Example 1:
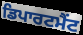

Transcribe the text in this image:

ਡਿਪਾਰਟਮੈਂਟ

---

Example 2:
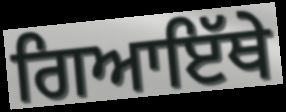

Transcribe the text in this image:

ਗਿਆਇੱਥੇ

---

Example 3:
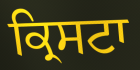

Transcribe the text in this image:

ਕ੍ਰਿਸਟਾ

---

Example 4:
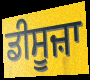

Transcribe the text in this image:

ਡੀਸੂਜ਼ਾ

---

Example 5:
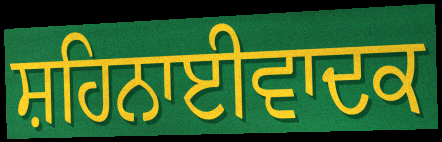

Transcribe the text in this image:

ਸ਼ਹਿਨਾਈਵਾਦਕ